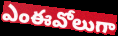
ఎంఈవోలుగా